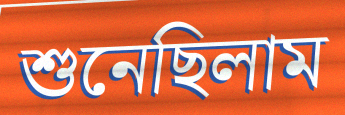
শুনেছিলাম